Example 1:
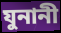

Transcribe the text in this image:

যুনানী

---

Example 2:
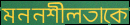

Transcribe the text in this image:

মননশীলতাকে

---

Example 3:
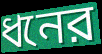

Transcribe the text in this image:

ধনের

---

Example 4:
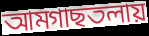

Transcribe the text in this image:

আমগাছতলায়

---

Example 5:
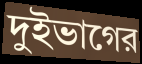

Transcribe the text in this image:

দুইভাগের